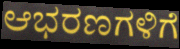
ಆಭರಣಗಳಿಗೆ